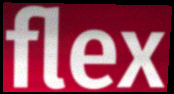
flex